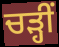
ਚੜ੍ਹੀਂ